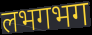
लभगभग